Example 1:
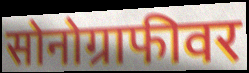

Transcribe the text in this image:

सोनोग्राफीवर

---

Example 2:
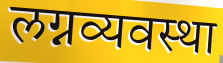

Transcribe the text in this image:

लग्नव्यवस्था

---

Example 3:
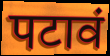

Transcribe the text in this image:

पटावं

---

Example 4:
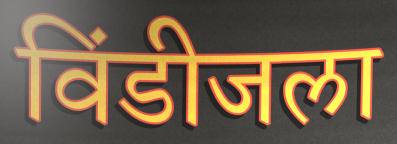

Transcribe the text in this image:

विंडीजला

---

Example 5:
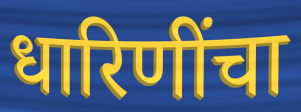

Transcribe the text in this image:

धारिणींचा